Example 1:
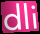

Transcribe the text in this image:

dli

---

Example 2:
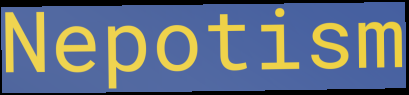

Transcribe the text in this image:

Nepotism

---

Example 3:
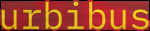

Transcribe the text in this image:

urbibus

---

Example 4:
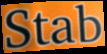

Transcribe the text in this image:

Stab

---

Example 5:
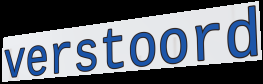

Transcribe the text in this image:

verstoord